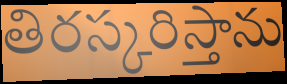
తిరస్కరిస్తాను